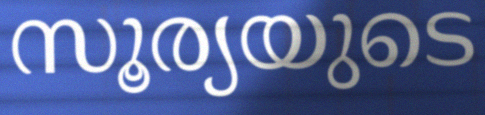
സൂര്യയുടെ